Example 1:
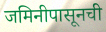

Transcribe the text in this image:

जमिनीपासूनची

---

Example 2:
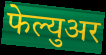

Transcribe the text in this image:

फेल्युअर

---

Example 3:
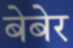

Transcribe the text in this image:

बेबेर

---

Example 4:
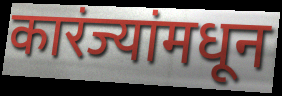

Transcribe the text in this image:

कारंज्यांमधून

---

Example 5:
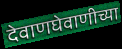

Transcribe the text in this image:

देवाणघेवाणीच्या